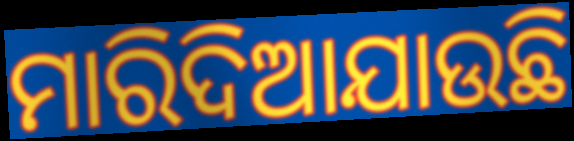
ମାରିଦିଆଯାଉଛି